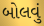
બોલવું